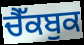
ਚੈੱਕਬੁਕ